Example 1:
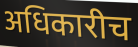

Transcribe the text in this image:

अधिकारीच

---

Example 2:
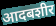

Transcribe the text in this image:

आदबशीर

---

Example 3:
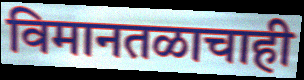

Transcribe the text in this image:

विमानतळाचाही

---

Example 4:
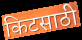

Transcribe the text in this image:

किटसाठी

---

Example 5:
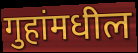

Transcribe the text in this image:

गुहांमधील